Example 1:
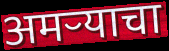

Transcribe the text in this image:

अमऱ्याचा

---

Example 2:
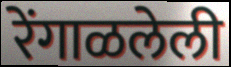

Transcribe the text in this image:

रेंगाळलेली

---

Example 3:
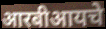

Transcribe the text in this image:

आरबीआयचे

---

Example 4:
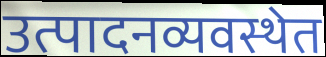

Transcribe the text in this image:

उत्पादनव्यवस्थेत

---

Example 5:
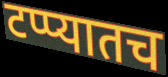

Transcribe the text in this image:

टप्प्यातच